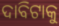
ଦାବିଟାକୁ